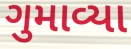
ગુમાવ્યા